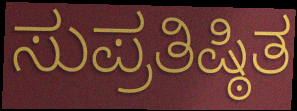
ಸುಪ್ರತಿಷ್ಠಿತ